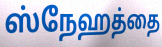
ஸ்நேஹத்தை